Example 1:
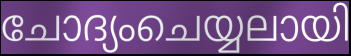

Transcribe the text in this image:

ചോദ്യംചെയ്യലായി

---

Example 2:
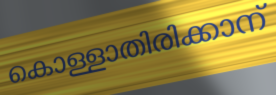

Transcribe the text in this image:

കൊള്ളാതിരിക്കാന്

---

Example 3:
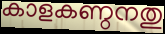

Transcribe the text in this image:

കാളകണ്ഠനതു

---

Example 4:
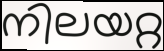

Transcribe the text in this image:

നിലയറ്റ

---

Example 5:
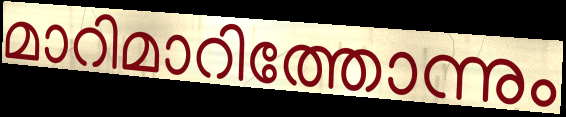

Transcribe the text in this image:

മാറിമാറിത്തോന്നും